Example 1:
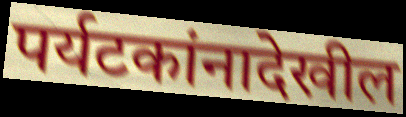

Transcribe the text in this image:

पर्यटकांनादेखील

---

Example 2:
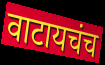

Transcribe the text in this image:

वाटायचंच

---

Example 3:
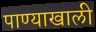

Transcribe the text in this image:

पाण्याखाली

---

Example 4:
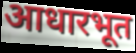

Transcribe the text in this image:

आधारभूत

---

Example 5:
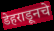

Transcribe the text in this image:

डेहराडूनचे